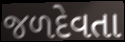
જળદેવતા